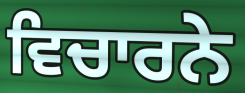
ਵਿਚਾਰਨੇ